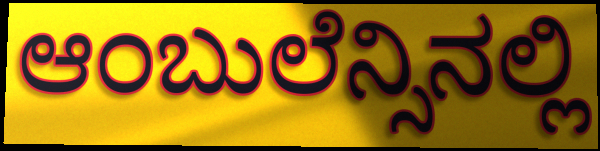
ಆಂಬುಲೆನ್ಸಿನಲ್ಲಿ